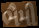
ભૈમી